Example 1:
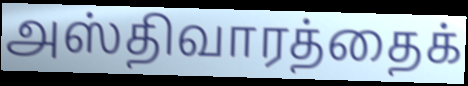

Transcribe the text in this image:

அஸ்திவாரத்தைக்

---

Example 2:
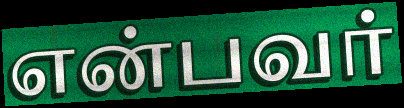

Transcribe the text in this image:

என்பவர்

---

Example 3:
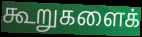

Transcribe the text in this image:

கூறுகளைக்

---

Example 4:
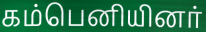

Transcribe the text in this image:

கம்பெனியினர்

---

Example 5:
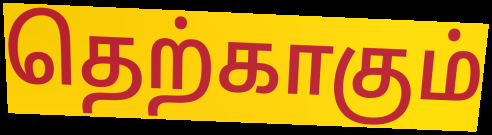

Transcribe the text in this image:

தெற்காகும்